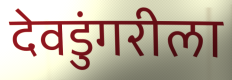
देवडुंगरीला